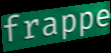
frappe